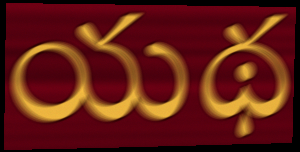
యథ